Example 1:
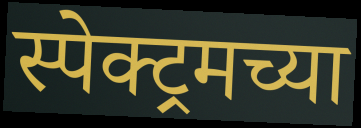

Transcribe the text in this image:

स्पेक्ट्रमच्या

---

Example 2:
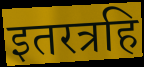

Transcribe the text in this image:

इतरत्रहि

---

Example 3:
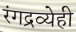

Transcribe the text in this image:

रंगद्रव्येही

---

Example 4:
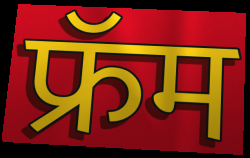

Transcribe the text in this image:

फ्रॅम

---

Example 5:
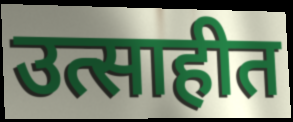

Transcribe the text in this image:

उत्साहीत